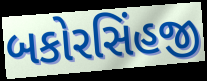
બકોરસિંહજી